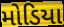
મોડિયા